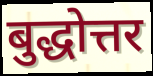
बुद्धोत्तर